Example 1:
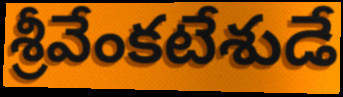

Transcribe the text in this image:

శ్రీవేంకటేశుడే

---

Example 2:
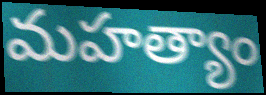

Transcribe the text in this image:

మహత్యాం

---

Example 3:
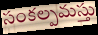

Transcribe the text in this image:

సంకల్పమస్తు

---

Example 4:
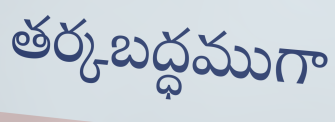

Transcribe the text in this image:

తర్కబద్ధముగా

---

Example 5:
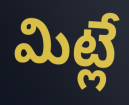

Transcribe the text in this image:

మిట్లే